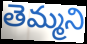
తెమ్మని